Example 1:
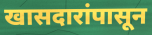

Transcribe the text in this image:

खासदारांपासून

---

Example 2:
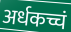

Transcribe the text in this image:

अर्धकच्चं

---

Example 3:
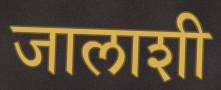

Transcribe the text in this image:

जालाशी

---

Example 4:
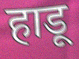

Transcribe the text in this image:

हाडू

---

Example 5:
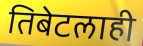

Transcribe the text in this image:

तिबेटलाही